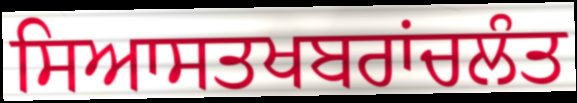
ਸਿਆਸਤਖਬਰਾਂਚਲੰਤ